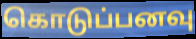
கொடுப்பனவு